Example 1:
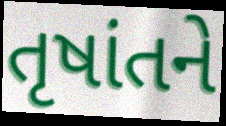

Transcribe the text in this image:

તૃષાંતને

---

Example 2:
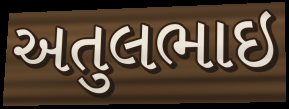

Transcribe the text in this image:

અતુલભાઇ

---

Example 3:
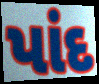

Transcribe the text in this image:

પાંદ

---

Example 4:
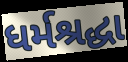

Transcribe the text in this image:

ધર્મશ્રદ્ધા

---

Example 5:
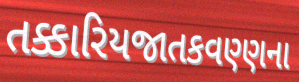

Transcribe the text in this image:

તક્કારિયજાતકવણ્ણના